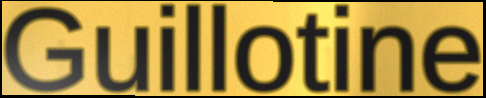
Guillotine